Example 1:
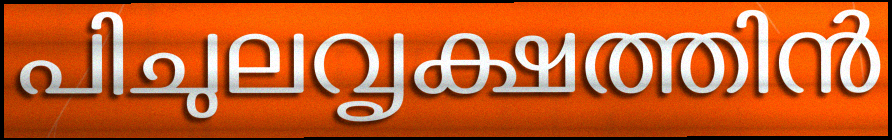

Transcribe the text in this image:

പിചുലവൃക്ഷത്തിൻ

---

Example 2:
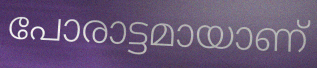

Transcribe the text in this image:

പോരാട്ടമായാണ്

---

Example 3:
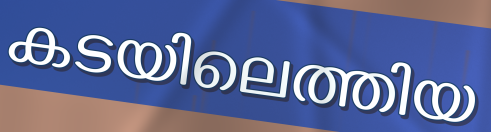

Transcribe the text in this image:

കടയിലെത്തിയ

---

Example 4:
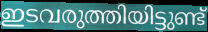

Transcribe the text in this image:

ഇടവരുത്തിയിട്ടുണ്ട്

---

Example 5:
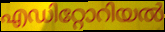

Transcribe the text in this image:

എഡിറ്റോറിയൽ